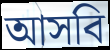
আসবি